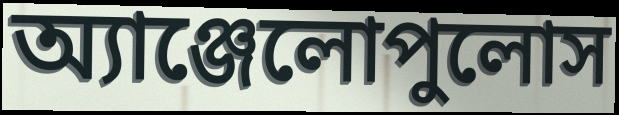
অ্যাঞ্জেলোপুলোস